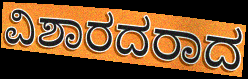
ವಿಶಾರದರಾದ